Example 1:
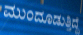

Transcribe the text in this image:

ಮುಂದೂಡುತ್ತಿದ್ದೆ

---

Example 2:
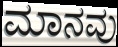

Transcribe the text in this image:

ಮಾನವು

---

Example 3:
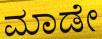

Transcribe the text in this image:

ಮಾಡೇ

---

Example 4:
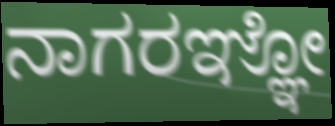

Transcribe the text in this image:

ನಾಗರಞ್ಞೋ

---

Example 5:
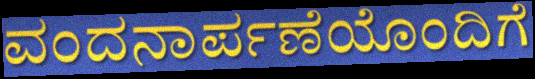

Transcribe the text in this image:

ವಂದನಾರ್ಪಣೆಯೊಂದಿಗೆ